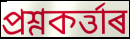
প্ৰশ্নকৰ্ত্তাৰ